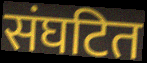
संघटित